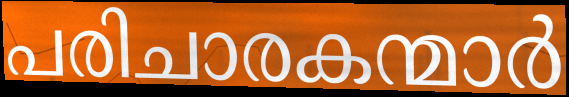
പരിചാരകന്മാർ